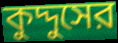
কুদ্দুসের